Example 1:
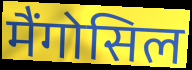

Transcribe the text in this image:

मैंगोसिल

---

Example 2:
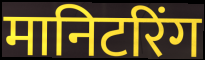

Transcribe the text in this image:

मानिटरिंग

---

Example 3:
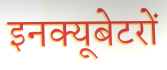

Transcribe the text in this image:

इनक्यूबेटरों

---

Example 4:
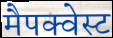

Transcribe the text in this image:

मैपक्वेस्ट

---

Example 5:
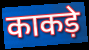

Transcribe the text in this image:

काकड़े